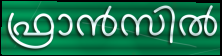
ഫ്രാൻസിൽ